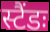
स्टैंडः